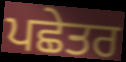
ਪਛੇਤਰ